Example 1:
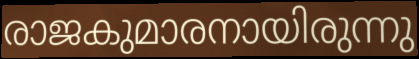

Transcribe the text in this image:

രാജകുമാരനായിരുന്നു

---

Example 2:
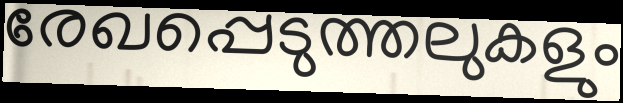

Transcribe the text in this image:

രേഖപ്പെടുത്തലുകളും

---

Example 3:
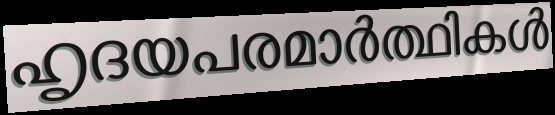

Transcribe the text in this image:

ഹൃദയപരമാർത്ഥികൾ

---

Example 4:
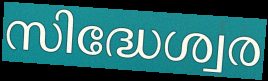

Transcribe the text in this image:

സിദ്ധേശ്വര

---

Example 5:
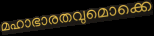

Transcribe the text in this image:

മഹാഭാരതവുമൊക്കെ